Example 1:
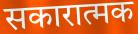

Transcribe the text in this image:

सकारात्‍मक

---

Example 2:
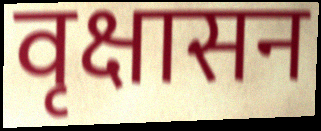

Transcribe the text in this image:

वृक्षासन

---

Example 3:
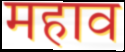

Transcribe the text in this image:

महाव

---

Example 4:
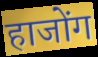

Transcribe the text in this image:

हाजोंग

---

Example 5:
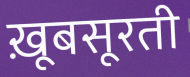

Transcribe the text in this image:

ख़ूबसूरती